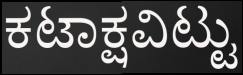
ಕಟಾಕ್ಷವಿಟ್ಟು